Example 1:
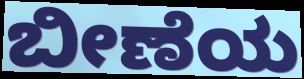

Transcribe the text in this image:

ಬೀಣೆಯ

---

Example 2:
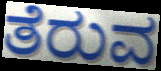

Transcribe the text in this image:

ತೆರುವ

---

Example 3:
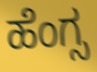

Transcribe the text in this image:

ಹೆಂಗ್ಸ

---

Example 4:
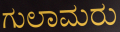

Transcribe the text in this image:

ಗುಲಾಮರು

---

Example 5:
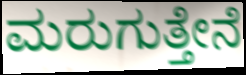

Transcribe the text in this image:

ಮರುಗುತ್ತೇನೆ